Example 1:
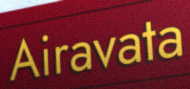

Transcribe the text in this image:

Airavata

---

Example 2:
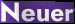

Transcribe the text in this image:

Neuer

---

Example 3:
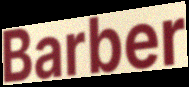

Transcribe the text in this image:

Barber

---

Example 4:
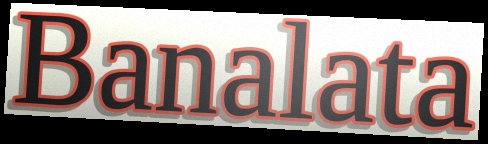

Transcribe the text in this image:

Banalata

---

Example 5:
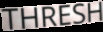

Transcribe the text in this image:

THRESH